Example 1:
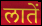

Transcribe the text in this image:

लातें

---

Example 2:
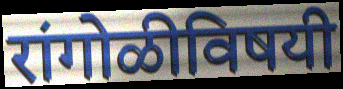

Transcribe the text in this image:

रांगोळीविषयी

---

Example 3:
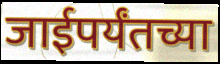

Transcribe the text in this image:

जाईपर्यंतच्या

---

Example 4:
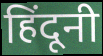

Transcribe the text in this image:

हिंदूनी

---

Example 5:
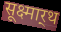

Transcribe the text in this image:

सूक्ष्मार्थ